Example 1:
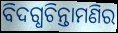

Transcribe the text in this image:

ବିଦଗ୍ଧଚିନ୍ତାମଣିର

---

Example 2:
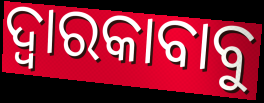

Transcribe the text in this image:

ଦ୍ୱାରକାବାବୁ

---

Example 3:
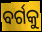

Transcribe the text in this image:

ବର୍ଗକୁ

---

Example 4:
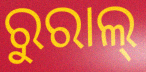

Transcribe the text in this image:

ରୁରାଲ୍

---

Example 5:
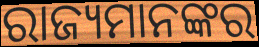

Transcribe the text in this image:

ରାଜ୍ୟମାନଙ୍କର